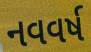
નવવર્ષ